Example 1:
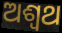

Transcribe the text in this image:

ଅଶ୍ବଥ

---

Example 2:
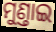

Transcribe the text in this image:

ମୁଣ୍ତାଇ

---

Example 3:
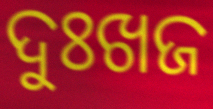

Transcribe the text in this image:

ଦୁଃଖଜ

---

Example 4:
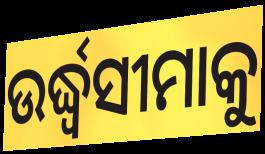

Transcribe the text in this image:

ଉର୍ଦ୍ଧ୍ୱସୀମାକୁ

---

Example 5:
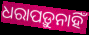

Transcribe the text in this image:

ଧରାପଡ଼ୁନାହିଁ